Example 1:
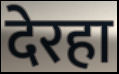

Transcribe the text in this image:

देरहा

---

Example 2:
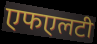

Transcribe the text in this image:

एफएलटी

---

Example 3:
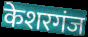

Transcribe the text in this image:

केशरगंज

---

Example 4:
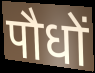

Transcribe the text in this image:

पौधों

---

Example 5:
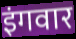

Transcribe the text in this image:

इंगवार